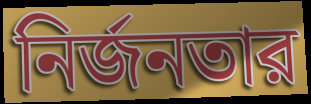
নির্জনতার